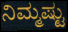
ನಿಮ್ಮಷ್ಟು